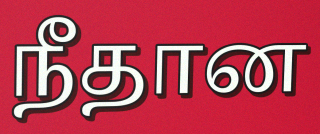
நீதான